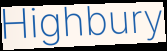
Highbury